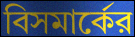
বিসমার্কের